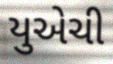
યુએચી